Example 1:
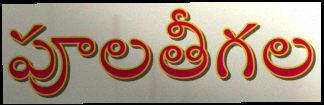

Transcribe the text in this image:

పూలతీగల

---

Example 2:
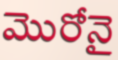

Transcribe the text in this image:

మొరోనై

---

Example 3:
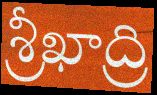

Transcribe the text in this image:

శ్రీఖాద్రి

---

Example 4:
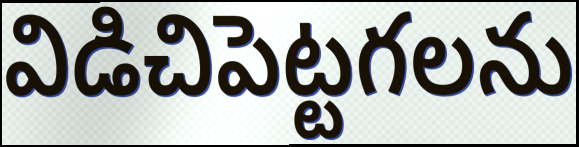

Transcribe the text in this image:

విడిచిపెట్టగలను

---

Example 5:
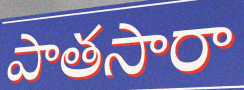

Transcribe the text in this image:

పాతసారా